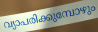
വ്യാപരിക്കുമ്പോഴും